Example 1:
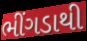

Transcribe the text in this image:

ભીંગડાથી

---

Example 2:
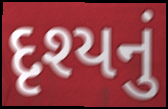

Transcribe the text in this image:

દૃશ્યનું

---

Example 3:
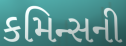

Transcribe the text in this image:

કમિન્સની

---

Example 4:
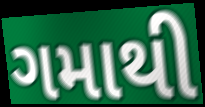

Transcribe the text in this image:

ગમાથી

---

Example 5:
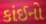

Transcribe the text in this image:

કાંઈનો